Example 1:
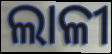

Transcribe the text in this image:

ଲାଳୀ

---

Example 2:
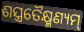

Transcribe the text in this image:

ଶସ୍ତ୍ରତୈକ୍ଷ୍ମଣ୍ୟମ୍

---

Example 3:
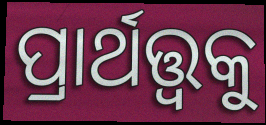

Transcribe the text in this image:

ପ୍ରାର୍ଥତ୍ତ୍ୱକୁ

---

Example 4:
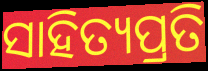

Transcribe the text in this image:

ସାହିତ୍ୟପ୍ରତି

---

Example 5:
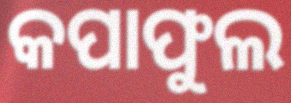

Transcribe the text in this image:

କପାଫୁଲ